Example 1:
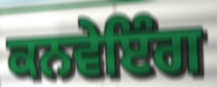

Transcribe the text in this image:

ਕਨਵੇਇੰਗ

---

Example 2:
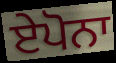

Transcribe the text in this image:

ਏਪੋਨਾ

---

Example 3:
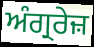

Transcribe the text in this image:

ਅੰਗ੍ਰਰੇਜ਼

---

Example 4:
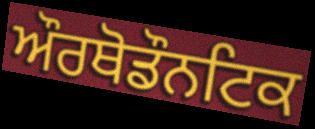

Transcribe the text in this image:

ਔਰਥੋਡੌਨਟਿਕ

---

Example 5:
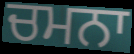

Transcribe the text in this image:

ਚਮਨਾ